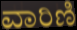
ವಾರಿಣಿ